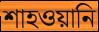
শাহওয়ানি